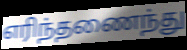
எரிந்தணைந்து